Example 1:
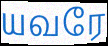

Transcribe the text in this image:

யவரே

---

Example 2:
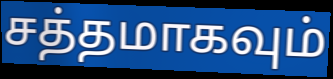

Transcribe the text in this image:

சத்தமாகவும்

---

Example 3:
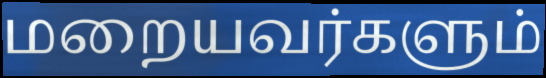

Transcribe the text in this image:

மறையவர்களும்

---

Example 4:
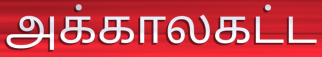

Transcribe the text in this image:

அக்காலகட்ட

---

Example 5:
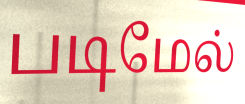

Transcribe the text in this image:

படிமேல்